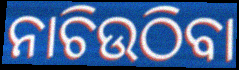
ନାଚିଉଠିବା